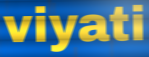
viyati